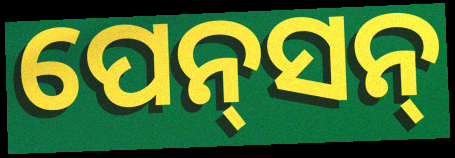
ପେନ୍‍ସନ୍